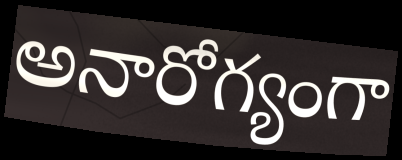
అనారోగ్యంగా